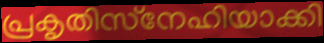
പ്രകൃതിസ്‌നേഹിയാക്കി